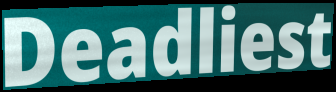
Deadliest